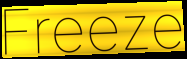
Freeze